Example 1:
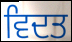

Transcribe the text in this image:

ਵਿਦਤ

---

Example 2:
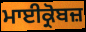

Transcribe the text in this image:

ਮਾਈਕ੍ਰੋਬਜ਼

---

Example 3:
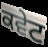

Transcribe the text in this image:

ਕਵੇਟ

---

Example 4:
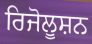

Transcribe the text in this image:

ਰਿਜੋਲੂਸ਼ਨ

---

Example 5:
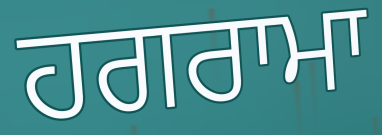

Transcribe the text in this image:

ਹਗਰਾਮਾ